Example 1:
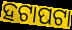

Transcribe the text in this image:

ହଟାପଟା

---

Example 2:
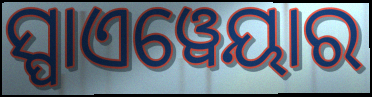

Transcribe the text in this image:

ସ୍ପାଏୱେୟାର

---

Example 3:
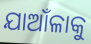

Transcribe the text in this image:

ଯାଆଁଳାକୁ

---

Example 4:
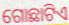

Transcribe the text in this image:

ଗୋଛାଟିଏ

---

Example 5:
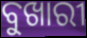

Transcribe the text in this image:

ବୁଖାରୀ